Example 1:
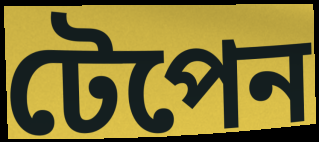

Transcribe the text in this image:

টেপেন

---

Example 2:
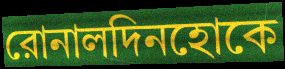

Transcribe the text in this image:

রোনালদিনহোকে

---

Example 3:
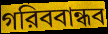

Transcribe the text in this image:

গরিববান্ধব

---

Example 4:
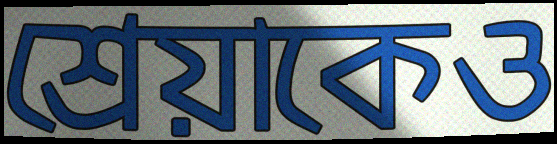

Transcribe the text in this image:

শ্রেয়াকেও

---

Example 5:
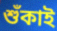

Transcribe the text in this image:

শুঁকাই